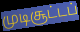
முடிசூட்டப்